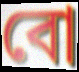
বো